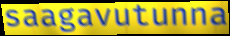
saagavutunna